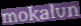
mokalun